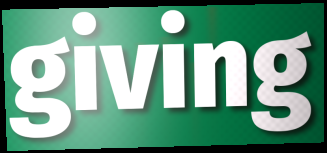
giving